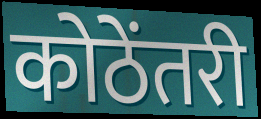
कोठेंतरी